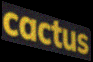
cactus